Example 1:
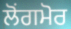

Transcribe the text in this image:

ਲੋਂਗਮੋਰ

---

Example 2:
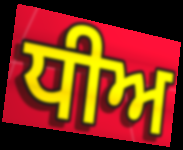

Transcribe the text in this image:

ਧੀਅ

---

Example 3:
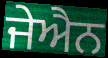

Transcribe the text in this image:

ਜੇਐਨ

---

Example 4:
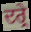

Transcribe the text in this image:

ਦਰ੍ਰੇ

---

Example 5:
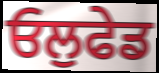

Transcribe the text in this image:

ਓਲੁਫੇਡ